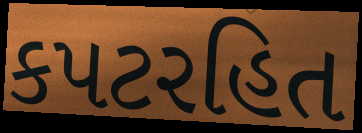
કપટરહિત